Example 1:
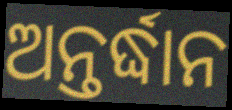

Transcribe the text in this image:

ଅନ୍ତର୍ଦ୍ଧାନ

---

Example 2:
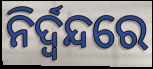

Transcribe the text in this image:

ନିର୍ଦ୍ୱନ୍ଦରେ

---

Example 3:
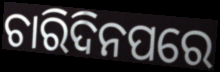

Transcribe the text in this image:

ଚାରିଦିନପରେ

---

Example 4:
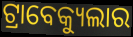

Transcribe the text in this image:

ଟ୍ରାବେକ୍ୟୁଲାର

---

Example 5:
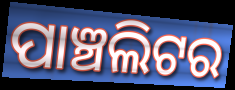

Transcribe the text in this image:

ପାଞ୍ଚଲିଟର